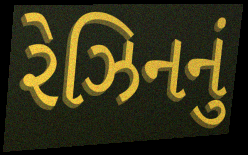
રેઝિનનું